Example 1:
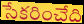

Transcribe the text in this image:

సేకరించేది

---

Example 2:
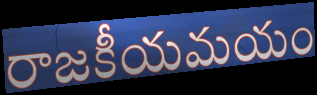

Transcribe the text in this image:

రాజకీయమయం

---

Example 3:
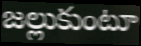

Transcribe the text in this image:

జల్లుకుంటూ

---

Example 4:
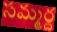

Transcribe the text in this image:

సమ్మర్ద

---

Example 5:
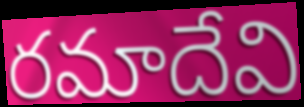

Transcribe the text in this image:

రమాదేవి